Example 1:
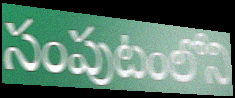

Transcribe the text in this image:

సంపుటంలోని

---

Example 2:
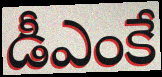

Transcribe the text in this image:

డీఎంకే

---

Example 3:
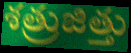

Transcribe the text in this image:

శత్రుజిత్తు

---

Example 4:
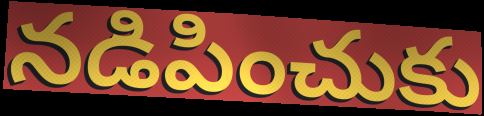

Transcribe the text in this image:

నడిపించుకు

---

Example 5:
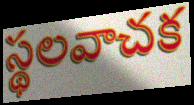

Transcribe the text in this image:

స్థలవాచక